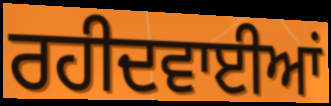
ਰਹੀਦਵਾਈਆਂ